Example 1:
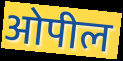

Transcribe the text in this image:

ओपील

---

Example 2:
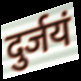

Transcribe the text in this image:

दुर्जयं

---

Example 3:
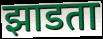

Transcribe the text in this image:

झाडता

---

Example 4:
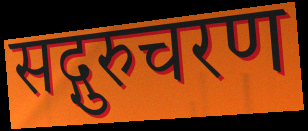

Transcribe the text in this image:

सद्गुरुचरण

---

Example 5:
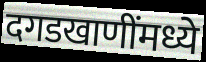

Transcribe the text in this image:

दगडखाणींमध्ये